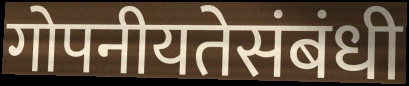
गोपनीयतेसंबंधी